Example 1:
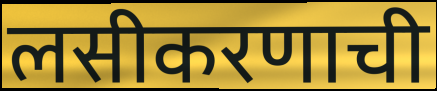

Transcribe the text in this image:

लसीकरणाची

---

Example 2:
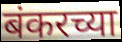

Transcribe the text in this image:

बंकरच्या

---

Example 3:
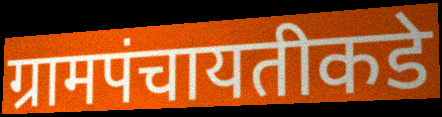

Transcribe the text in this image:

ग्रामपंचायतीकडे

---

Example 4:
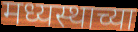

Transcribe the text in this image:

मध्यस्थाच्या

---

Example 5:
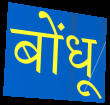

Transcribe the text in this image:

बोंधू